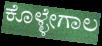
ಕೊಳ್ಳೇಗಾಲ